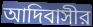
আদিবাসীর